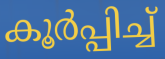
കൂർപ്പിച്ച്